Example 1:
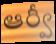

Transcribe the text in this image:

ఆర్వీ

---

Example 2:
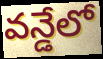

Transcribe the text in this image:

వన్డేలో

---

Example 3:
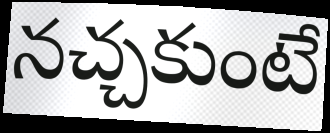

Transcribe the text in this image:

నచ్చకుంటే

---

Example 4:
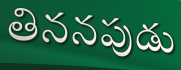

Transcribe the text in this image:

తిననపుడు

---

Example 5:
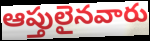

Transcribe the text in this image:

ఆప్తులైనవారు